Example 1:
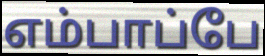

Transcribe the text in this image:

எம்பாப்பே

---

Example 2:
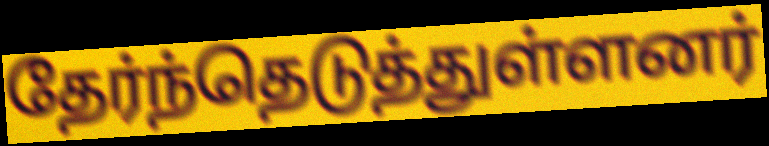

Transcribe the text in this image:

தேர்ந்தெடுத்துள்ளனர்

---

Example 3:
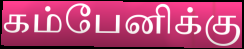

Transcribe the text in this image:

கம்பேனிக்கு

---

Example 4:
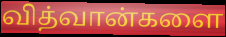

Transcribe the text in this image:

வித்வான்களை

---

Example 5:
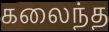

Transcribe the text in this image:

கலைந்த